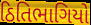
ઠિતિભાગિયો